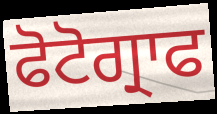
ਫੋਟੋਗ੍ਰਾਫ